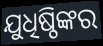
ଯୁଧିଷ୍ଠିଙ୍କର